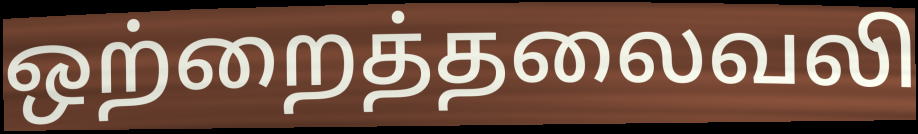
ஒற்றைத்தலைவலி